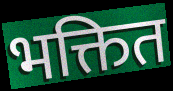
भक्तित